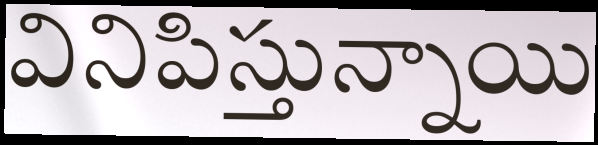
వినిపిస్తున్నాయి